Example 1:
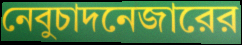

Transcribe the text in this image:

নেবুচাদনেজারের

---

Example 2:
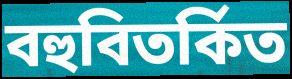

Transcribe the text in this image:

বহুবিতর্কিত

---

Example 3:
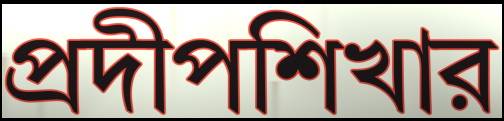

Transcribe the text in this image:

প্রদীপশিখার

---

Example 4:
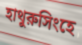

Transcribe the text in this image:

হাথুরুসিংহে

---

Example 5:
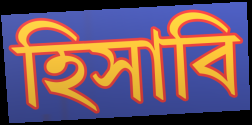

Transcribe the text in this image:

হিসাবি